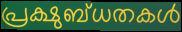
പ്രക്ഷുബ്ധതകൾ